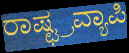
ರಾಷ್ಟ್ರವ್ಯಾಪಿ